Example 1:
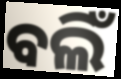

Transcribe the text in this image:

ବଲିଁ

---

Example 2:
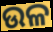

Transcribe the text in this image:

ଉଳ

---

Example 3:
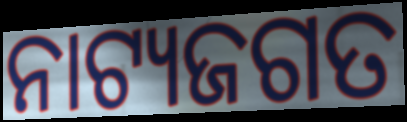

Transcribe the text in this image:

ନାଟ୍ୟଜଗତ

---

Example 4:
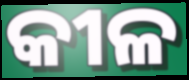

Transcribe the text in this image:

କୀଳ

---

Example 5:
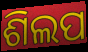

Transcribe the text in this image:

ଶିଲପ